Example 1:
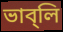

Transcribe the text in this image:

ভাব্‌লি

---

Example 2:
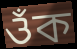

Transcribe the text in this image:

ওঁক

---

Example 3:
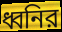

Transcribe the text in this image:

ধ্বনির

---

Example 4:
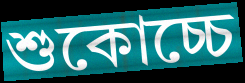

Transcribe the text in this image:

শুকোচ্চে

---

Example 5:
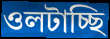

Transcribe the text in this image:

ওলটাচ্ছি